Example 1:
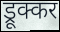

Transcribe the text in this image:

ड्रूक्कर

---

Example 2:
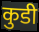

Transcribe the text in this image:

कुडी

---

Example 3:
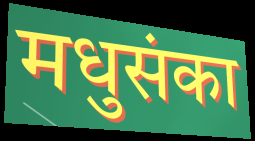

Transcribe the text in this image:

मधुसंका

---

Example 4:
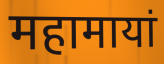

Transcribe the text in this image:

महामायां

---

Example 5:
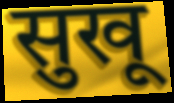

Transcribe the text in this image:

सुखू